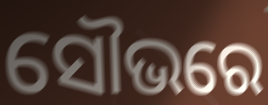
ସୌଭରେ